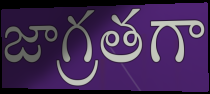
జాగ్రతగా